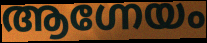
ആഗ്നേയം